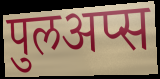
पुलअप्स